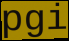
pgi